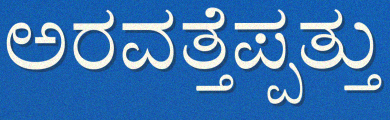
ಅರವತ್ತೆಪ್ಪತ್ತು